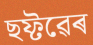
ছফ্টৱেৰ